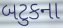
બટુકના